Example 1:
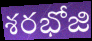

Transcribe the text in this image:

శరభోజి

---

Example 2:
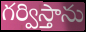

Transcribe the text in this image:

గర్విస్తాను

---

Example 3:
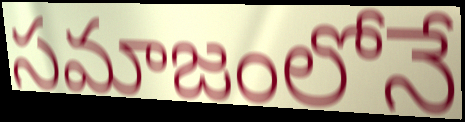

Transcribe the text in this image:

సమాజంలోనే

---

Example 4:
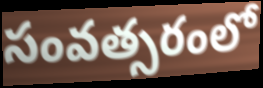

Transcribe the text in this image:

సంవత్సరంలో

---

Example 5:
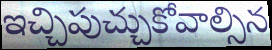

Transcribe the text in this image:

ఇచ్చిపుచ్చుకోవాల్సిన